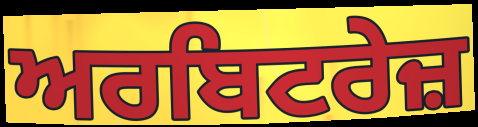
ਅਰਬਿਟਰੇਜ਼